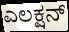
ಎಲಕ್ಷನ್